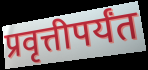
प्रवृत्तीपर्यंत